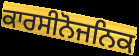
ਕਾਰਸੀਨੋਜਨਿਕ